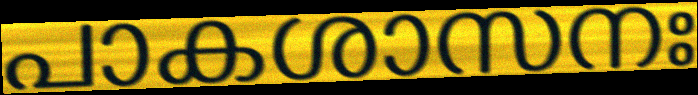
പാകശാസനഃ